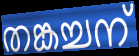
തങ്കച്ചന്